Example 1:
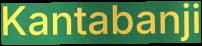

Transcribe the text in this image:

Kantabanji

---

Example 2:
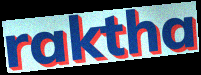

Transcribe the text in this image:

raktha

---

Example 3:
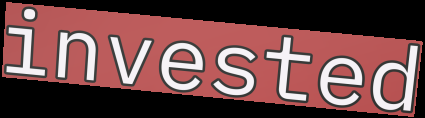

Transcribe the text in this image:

invested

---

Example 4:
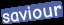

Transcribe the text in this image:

saviour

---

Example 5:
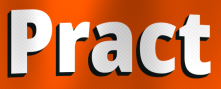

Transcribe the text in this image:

Pract